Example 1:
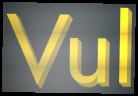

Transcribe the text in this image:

Vul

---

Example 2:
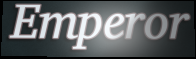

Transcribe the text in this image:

Emperor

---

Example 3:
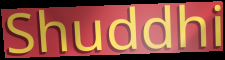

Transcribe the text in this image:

Shuddhi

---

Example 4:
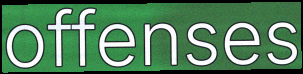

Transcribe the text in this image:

offenses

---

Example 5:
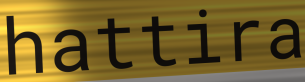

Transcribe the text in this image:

hattira